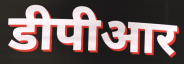
डीपीआर